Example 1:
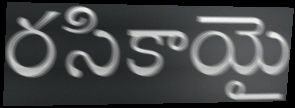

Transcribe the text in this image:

రసికాయై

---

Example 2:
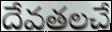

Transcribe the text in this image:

దేవతలచే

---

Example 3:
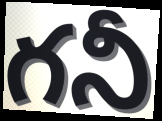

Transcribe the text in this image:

గనీ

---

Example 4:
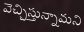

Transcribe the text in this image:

వెచ్చిస్తున్నామని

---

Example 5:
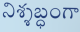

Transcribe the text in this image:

నిశ్శబ్ధంగా